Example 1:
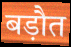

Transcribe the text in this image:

बड़ौत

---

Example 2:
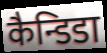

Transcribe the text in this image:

कैन्डिडा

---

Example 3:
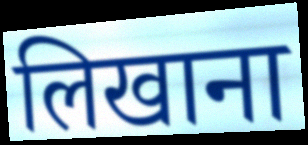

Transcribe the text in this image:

लिखाना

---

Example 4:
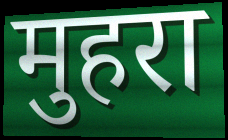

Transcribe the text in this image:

मुहरा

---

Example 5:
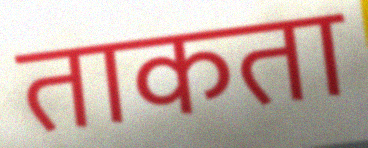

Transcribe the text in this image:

ताकता